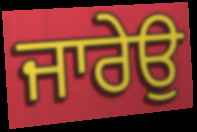
ਜਾਰੇਉ